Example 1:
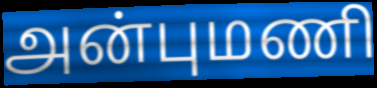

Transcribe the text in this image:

அன்புமணி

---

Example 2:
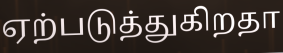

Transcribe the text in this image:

ஏற்படுத்துகிறதா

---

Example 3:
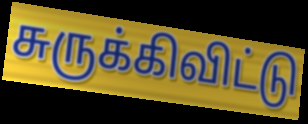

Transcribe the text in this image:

சுருக்கிவிட்டு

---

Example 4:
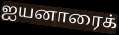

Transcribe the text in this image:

ஐயனாரைக்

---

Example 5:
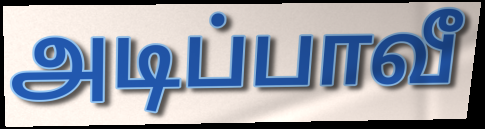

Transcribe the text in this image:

அடிப்பாவீ